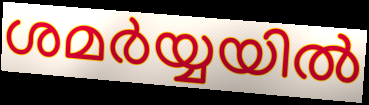
ശമർയ്യയിൽ